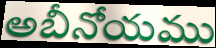
అబీనోయము